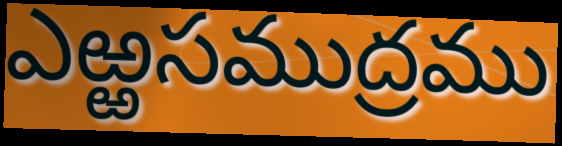
ఎఱ్ఱసముద్రము